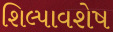
શિલ્પાવશેષ